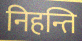
निहन्ति